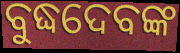
ବୁଦ୍ଧଦେବଙ୍କ